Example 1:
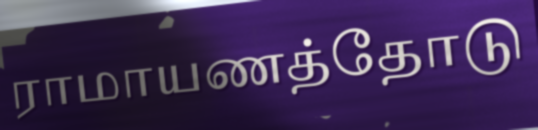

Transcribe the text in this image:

ராமாயணத்தோடு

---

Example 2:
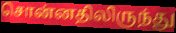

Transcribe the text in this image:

சொன்னதிலிருந்து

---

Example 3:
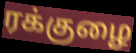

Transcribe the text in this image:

ரக்குழை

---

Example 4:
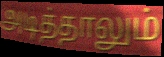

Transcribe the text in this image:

அடித்தாலும்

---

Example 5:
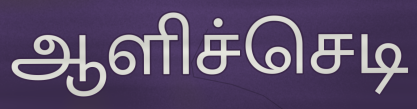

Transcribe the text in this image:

ஆளிச்செடி